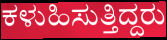
ಕಳುಹಿಸುತ್ತಿದ್ದರು